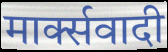
मार्क्सवादी